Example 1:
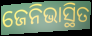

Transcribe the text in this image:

ଜେନିଭାସ୍ଥିତ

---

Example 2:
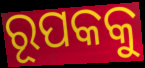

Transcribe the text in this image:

ରୂପକକୁ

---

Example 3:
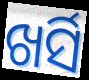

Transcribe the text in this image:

ଖର୍ସି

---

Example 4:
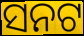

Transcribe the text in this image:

ସନଟ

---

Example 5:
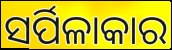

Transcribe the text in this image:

ସର୍ପିଳାକାର